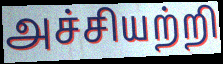
அச்சியற்றி